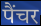
पैंचर